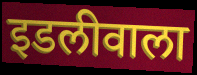
इडलीवाला